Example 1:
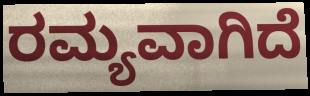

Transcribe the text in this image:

ರಮ್ಯವಾಗಿದೆ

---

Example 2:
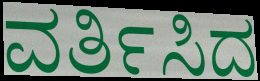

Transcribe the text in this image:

ವರ್ತಿಸಿದ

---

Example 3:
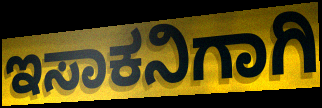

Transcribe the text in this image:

ಇಸಾಕನಿಗಾಗಿ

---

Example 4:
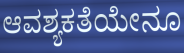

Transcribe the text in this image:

ಆವಶ್ಯಕತೆಯೇನೂ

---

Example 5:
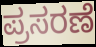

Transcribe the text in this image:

ಪ್ರಸರಣೆ